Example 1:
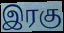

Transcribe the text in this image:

இரகு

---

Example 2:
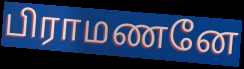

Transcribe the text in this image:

பிராமணனே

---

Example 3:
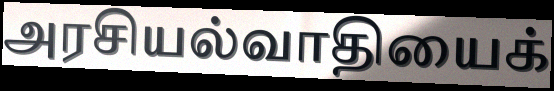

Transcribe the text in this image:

அரசியல்வாதியைக்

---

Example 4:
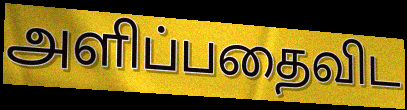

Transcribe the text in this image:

அளிப்பதைவிட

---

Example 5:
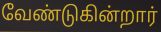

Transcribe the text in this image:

வேண்டுகின்றார்